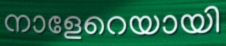
നാളേറെയായി